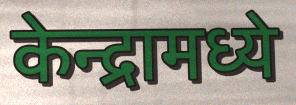
केन्द्रामध्ये